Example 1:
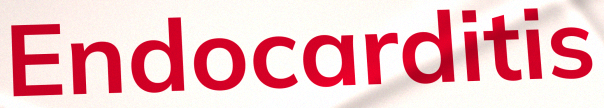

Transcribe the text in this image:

Endocarditis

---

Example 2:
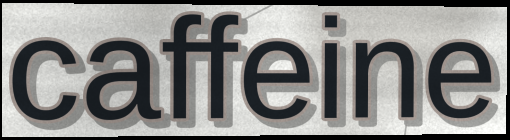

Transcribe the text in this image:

caffeine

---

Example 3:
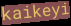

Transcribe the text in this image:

kaikeyi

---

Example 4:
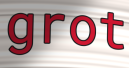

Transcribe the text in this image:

grot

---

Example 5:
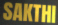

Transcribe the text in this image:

SAKTHI